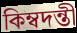
কিম্বদন্তী